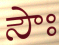
సౌః